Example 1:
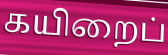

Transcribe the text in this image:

கயிறைப்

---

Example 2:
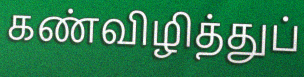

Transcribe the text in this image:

கண்விழித்துப்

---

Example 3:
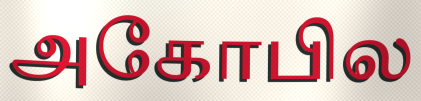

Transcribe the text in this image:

அகோபில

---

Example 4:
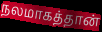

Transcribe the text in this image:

நலமாகத்தான்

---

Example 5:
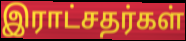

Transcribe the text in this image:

இராட்சதர்கள்